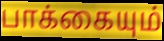
பாக்கையும்